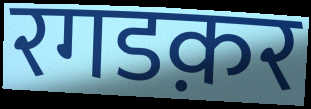
रगडक़र